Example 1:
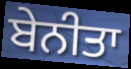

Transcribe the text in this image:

ਬੇਨੀਤਾ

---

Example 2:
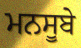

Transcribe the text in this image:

ਮਨਸੂਬੇ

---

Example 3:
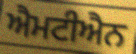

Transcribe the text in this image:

ਐਮਟੀਐਨ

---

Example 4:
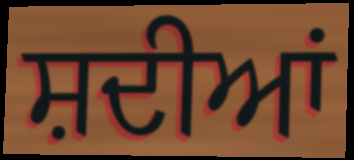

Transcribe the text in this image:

ਸ਼ਦੀਆਂ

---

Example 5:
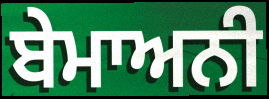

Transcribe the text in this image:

ਬੇਮਾਅਨੀ